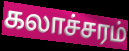
கலாச்சரம்